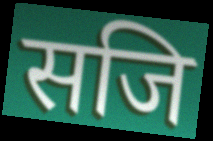
सजि